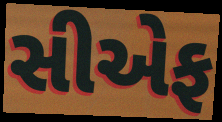
સીએફ